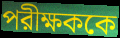
পরীক্ষককে